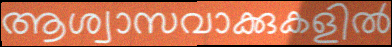
ആശ്വാസവാക്കുകളിൽ